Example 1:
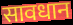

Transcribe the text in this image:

सावधान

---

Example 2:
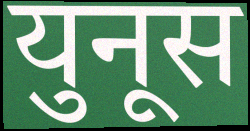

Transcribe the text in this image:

युनूस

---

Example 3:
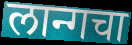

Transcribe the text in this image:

लान्गचा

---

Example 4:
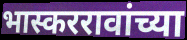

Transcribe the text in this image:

भास्कररावांच्या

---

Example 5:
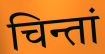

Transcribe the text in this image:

चिन्तां